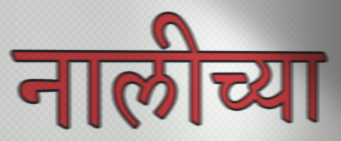
नालीच्या